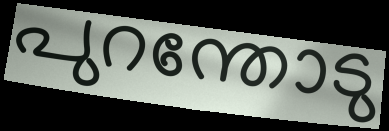
പുറന്തോടു